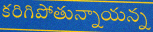
కరిగిపోతున్నాయన్న